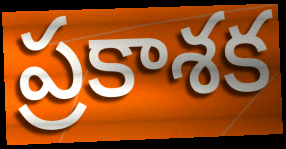
ప్రకాశక